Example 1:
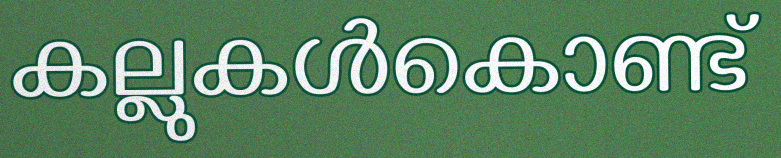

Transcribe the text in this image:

കല്ലുകൾകൊണ്ട്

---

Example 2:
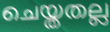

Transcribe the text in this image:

ചെയ്തതല്ല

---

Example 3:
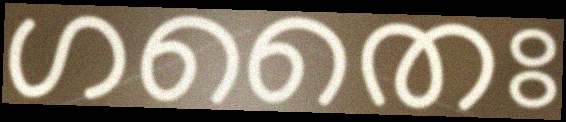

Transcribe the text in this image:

ഗതൈഃ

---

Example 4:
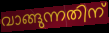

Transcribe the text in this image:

വാങ്ങുന്നതിന്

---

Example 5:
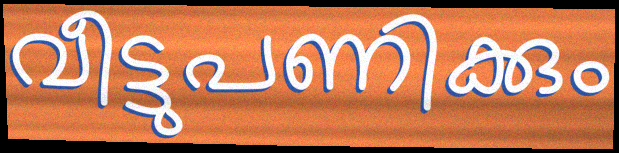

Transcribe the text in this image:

വീട്ടുപണിക്കും